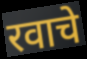
रवाचे